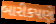
બારીકપણે